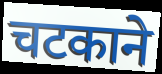
चटकाने